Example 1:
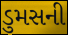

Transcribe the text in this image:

ડુમસની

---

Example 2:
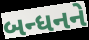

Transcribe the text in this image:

બન્ધનને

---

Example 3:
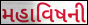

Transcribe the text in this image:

મહાવિષની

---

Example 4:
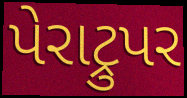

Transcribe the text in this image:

પેરાટ્રુપર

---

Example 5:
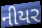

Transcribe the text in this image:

નીયર